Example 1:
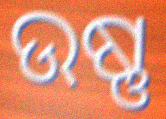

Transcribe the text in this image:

ଉଷ୍ଣ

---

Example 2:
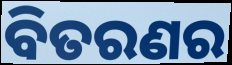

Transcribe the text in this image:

ବିତରଣର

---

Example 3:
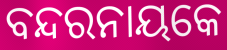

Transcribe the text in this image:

ବନ୍ଦରନାୟକେ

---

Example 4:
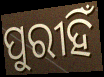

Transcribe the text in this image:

ପୁରୀହିଁ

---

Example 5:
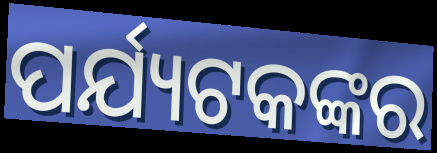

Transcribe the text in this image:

ପର୍ଯ୍ୟଟକଙ୍କର